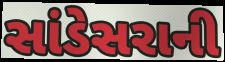
સાંડેસરાની